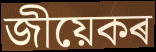
জীয়েকৰ